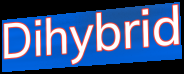
Dihybrid